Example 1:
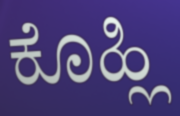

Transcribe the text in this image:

ಕೊಹ್ಲಿ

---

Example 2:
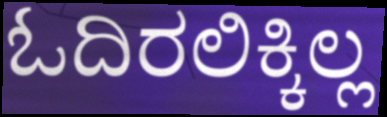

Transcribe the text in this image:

ಓದಿರಲಿಕ್ಕಿಲ್ಲ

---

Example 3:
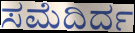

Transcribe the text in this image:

ಸಮೆದಿರ್ದ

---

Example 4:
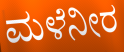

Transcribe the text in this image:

ಮಳೆನೀರ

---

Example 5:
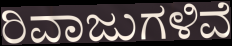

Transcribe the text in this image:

ರಿವಾಜುಗಳಿವೆ